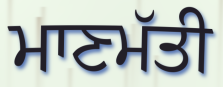
ਮਾਣਮੱਤੀ